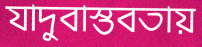
যাদুবাস্তবতায়